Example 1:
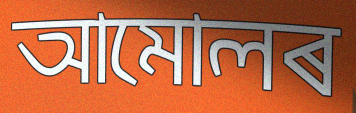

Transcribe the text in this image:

আমোলৰ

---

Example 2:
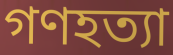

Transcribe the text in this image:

গণহত্যা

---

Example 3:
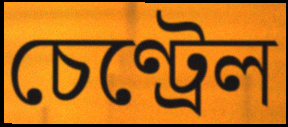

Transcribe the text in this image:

চেণ্ট্ৰেল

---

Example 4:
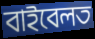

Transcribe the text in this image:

বাইবেলত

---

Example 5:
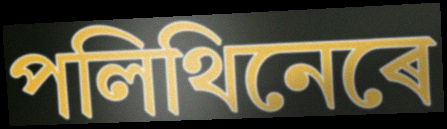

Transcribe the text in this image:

পলিথিনেৰে